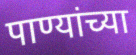
पाण्यांच्या